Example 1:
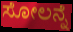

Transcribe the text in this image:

ಸೋಲನ್ನೆ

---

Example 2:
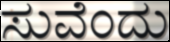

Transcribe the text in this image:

ಸುವೆಂದು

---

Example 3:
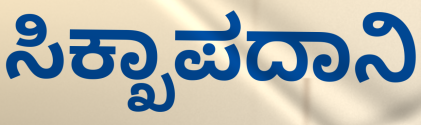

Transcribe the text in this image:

ಸಿಕ್ಖಾಪದಾನಿ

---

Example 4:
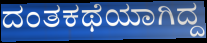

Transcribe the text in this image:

ದಂತಕಥೆಯಾಗಿದ್ದ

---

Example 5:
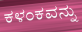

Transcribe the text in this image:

ಕಳಂಕವನ್ನು